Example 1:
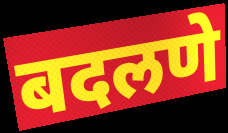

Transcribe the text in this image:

बदलणे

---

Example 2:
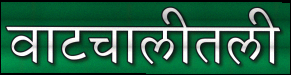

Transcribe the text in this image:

वाटचालीतली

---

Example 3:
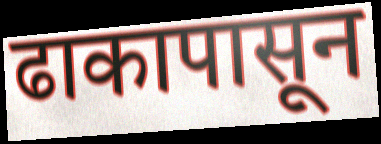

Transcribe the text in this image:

ढाकापासून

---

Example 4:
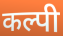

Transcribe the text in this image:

कल्पी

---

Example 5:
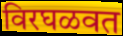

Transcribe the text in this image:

विरघळवत